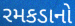
રમકડાનો